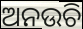
ଅନଉଚି